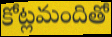
కోట్లమందితో